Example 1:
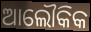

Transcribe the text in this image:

ଆଲୌକିକ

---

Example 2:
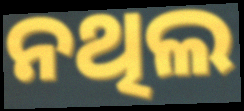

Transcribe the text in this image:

ନଥିଲ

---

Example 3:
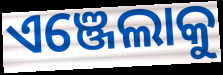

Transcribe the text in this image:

ଏଞ୍ଜେଲାକୁ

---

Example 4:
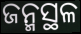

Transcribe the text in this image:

ଜନ୍ମସ୍ଥଳ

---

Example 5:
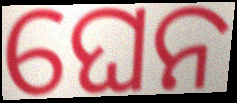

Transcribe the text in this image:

ଘେନ